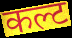
कल्ट